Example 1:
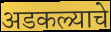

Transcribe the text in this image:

अडकल्याचे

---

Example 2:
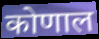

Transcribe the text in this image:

कोणाल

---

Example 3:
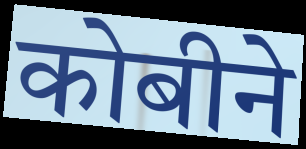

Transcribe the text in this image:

कोबीने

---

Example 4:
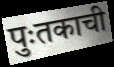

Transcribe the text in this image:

पुःतकाची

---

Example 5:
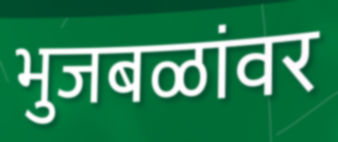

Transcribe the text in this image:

भुजबळांवर